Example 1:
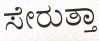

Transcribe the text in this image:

ಸೇರುತ್ತಾ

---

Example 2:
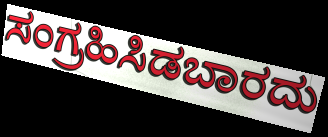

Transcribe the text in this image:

ಸಂಗ್ರಹಿಸಿಡಬಾರದು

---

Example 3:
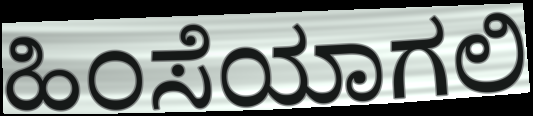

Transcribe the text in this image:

ಹಿಂಸೆಯಾಗಲಿ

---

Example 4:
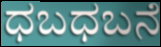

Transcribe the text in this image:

ಧಬಧಬನೆ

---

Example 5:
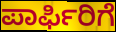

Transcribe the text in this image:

ಪಾರ್ಫಿರಿಗೆ